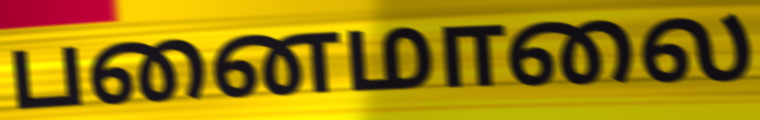
பனைமாலை